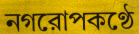
নগরোপকণ্ঠে